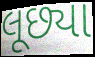
લૂછ્યા